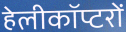
हेलीकॉप्‍टरों